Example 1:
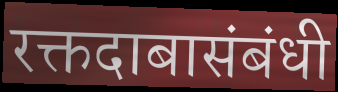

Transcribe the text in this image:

रक्तदाबासंबंधी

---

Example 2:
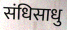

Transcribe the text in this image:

संधिसाधु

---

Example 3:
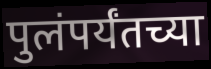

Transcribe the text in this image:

पुलंपर्यंतच्या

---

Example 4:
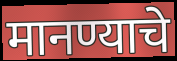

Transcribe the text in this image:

मानण्याचे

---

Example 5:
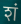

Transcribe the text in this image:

शं